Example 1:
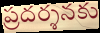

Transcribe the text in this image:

ప్రదర్శనకు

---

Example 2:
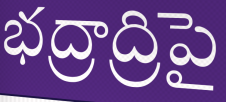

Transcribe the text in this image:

భద్రాద్రిపై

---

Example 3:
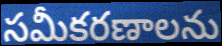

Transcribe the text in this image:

సమీకరణాలను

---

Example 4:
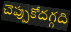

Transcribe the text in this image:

చెప్పుకోదగ్గది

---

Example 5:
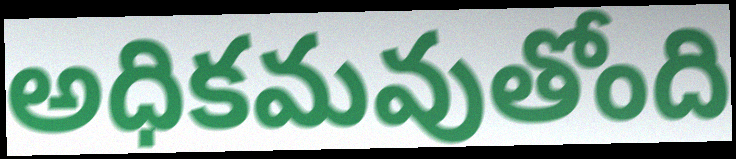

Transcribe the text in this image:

అధికమవుతోంది